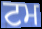
ਟਮ